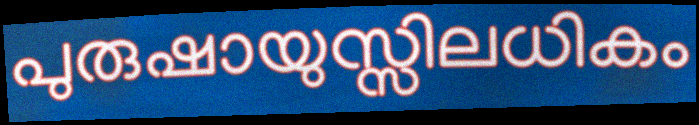
പുരുഷായുസ്സിലധികം